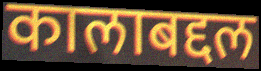
कालाबद्दल